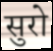
सुरो